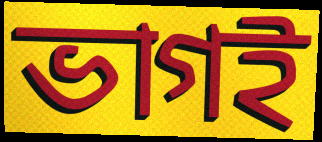
ভাগই